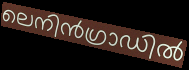
ലെനിൻഗ്രാഡിൽ